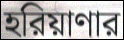
হরিয়াণার